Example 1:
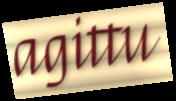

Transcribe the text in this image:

agittu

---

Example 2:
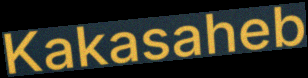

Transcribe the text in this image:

Kakasaheb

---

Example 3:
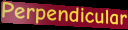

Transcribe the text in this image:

Perpendicular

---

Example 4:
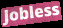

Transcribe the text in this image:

Jobless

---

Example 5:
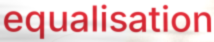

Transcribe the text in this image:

equalisation